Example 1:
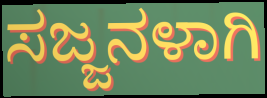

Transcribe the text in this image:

ಸಜ್ಜನಳಾಗಿ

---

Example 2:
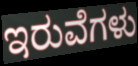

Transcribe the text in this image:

ಇರುವೆಗಳು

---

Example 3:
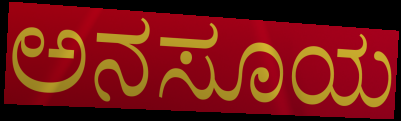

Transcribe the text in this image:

ಅನಸೂಯ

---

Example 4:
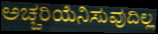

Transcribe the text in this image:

ಅಚ್ಚರಿಯೆನಿಸುವುದಿಲ್ಲ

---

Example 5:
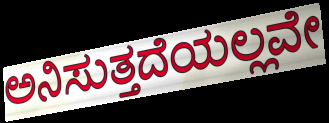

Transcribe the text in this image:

ಅನಿಸುತ್ತದೆಯಲ್ಲವೇ